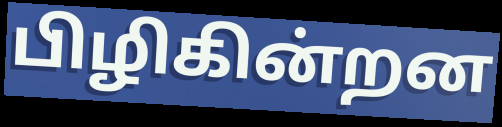
பிழிகின்றன